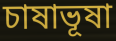
চাষাভূষা